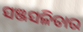
ସଞ୍ଜସଳିତାର